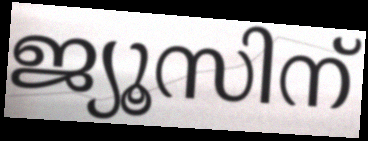
ജ്യൂസിന്